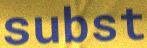
subst